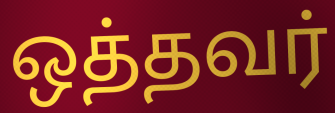
ஒத்தவர்